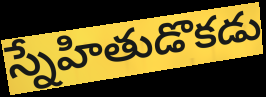
స్నేహితుడొకడు